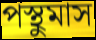
পস্থুমাস